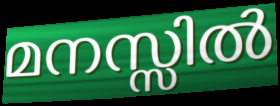
മനസ്സിൽ